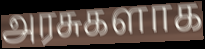
அரசுகளாக